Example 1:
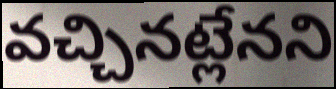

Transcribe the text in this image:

వచ్చినట్లేనని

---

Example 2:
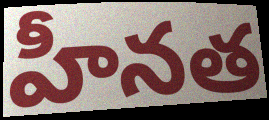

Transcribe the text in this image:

హీనత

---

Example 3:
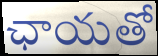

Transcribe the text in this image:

ఛాయతో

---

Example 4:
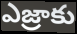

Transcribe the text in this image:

ఎజ్రాకు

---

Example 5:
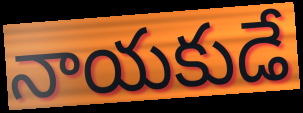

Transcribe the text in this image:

నాయకుడే